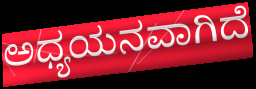
ಅಧ್ಯಯನವಾಗಿದೆ